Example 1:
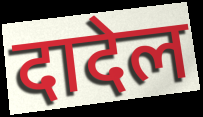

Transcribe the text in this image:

दादेल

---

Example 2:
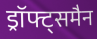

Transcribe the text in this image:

ड्रॉफ्ट्समैन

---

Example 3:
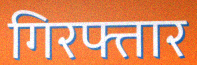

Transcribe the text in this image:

गिरफ्तार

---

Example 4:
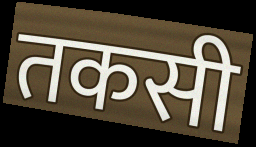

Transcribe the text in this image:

तकसी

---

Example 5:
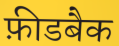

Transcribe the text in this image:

फ़ीडबैक